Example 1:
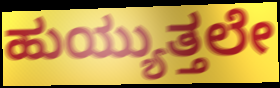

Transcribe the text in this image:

ಹುಯ್ಯುತ್ತಲೇ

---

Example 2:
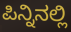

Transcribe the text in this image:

ಪಿನ್ನಿನಲ್ಲಿ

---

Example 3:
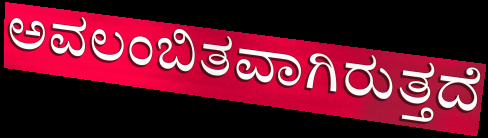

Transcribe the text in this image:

ಅವಲಂಬಿತವಾಗಿರುತ್ತದೆ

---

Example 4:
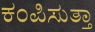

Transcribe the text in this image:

ಕಂಪಿಸುತ್ತಾ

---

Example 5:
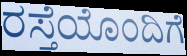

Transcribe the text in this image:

ರಸ್ತೆಯೊಂದಿಗೆ